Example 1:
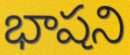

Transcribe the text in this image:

భాషని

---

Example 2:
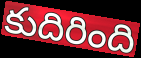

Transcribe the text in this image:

కుదిరింది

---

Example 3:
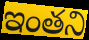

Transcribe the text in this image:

ఇంతని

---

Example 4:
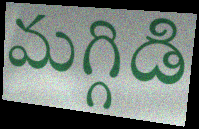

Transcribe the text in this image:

మగ్గిడి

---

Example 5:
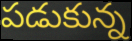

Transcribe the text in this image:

పడుకున్న